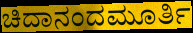
ಚಿದಾನಂದಮೂರ್ತಿ